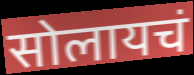
सोलायचं